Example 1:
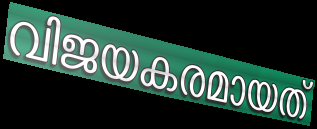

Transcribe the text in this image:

വിജയകരമായത്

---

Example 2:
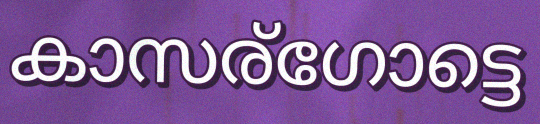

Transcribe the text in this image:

കാസര്ഗോട്ടെ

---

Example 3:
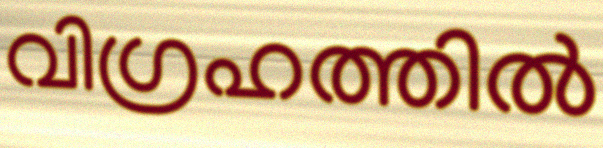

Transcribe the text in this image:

വിഗ്രഹത്തിൽ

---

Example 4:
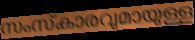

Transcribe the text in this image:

സംസ്‌കാരവുമായുള്ള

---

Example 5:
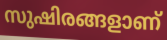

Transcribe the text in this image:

സുഷിരങ്ങളാണ്